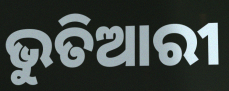
ଭୁତିଆରୀ